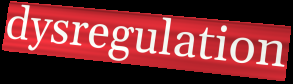
dysregulation